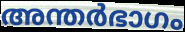
അന്തർഭാഗം